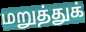
மறுத்துக்